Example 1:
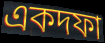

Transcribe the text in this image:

একদফা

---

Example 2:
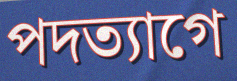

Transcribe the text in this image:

পদত্যাগে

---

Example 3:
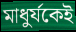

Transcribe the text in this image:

মাধুর্যকেই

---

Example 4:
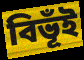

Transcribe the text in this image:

বিভূঁই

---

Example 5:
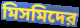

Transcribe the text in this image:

মিসমিদের